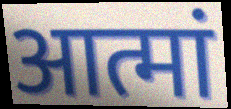
आत्मां